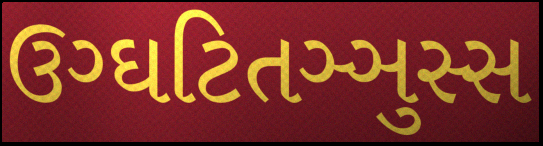
ઉગ્ઘટિતઞ્ઞુસ્સ